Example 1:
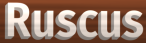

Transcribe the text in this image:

Ruscus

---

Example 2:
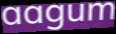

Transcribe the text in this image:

aagum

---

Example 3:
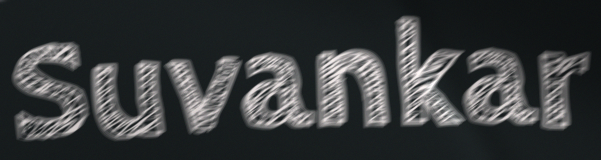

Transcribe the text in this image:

Suvankar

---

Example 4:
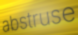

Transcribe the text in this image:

abstruse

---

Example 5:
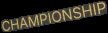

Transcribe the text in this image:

CHAMPIONSHIP